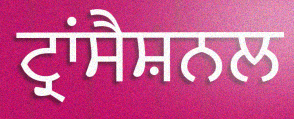
ਟ੍ਰਾਂਸੈਸ਼ਨਲ